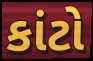
કાંટો